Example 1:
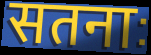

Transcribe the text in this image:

सतनाः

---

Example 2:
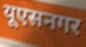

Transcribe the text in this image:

यूएसनगर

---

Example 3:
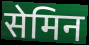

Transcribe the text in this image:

सेमिन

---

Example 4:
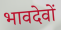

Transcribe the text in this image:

भावदेवों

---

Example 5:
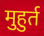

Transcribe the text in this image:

मुहुर्त